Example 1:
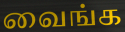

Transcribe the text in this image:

வைங்க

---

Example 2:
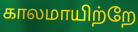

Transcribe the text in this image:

காலமாயிற்றே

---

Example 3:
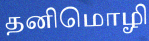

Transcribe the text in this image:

தனிமொழி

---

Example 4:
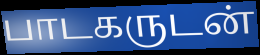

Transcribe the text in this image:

பாடகருடன்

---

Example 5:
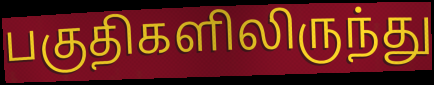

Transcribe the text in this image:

பகுதிகளிலிருந்து